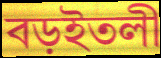
বড়ইতলী